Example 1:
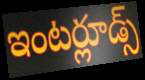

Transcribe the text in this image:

ఇంటర్లూడ్స్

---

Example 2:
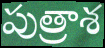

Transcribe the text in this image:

పుత్రాశ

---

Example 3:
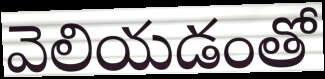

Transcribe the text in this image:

వెలియడంతో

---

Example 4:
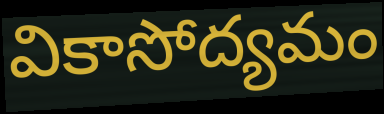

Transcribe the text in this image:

వికాసోద్యమం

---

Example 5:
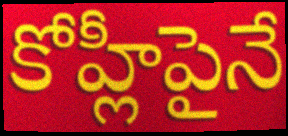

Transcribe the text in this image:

కోహ్లీపైనే